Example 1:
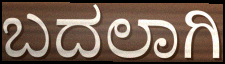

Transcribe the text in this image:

ಬದಲಾಗಿ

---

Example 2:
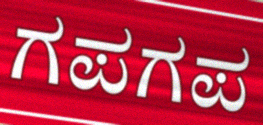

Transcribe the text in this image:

ಗಪಗಪ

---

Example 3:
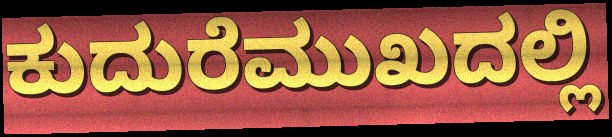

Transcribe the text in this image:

ಕುದುರೆಮುಖದಲ್ಲಿ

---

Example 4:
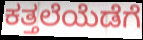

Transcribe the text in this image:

ಕತ್ತಲೆಯೆಡೆಗೆ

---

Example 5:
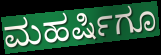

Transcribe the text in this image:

ಮಹರ್ಷಿಗೂ